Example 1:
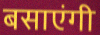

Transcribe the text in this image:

बसाएंगी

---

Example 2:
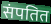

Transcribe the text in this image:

संपतित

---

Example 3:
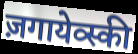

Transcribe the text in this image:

ज़गायेव्स्की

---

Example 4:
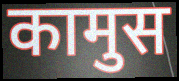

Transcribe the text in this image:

कामुस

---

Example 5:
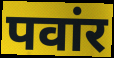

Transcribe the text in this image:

पवांर